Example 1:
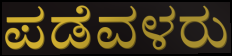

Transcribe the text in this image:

ಪಡೆವಳರು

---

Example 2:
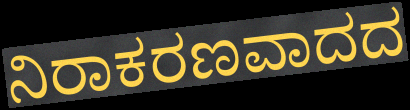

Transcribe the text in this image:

ನಿರಾಕರಣವಾದದ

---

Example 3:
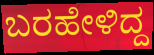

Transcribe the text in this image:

ಬರಹೇಳಿದ್ದ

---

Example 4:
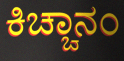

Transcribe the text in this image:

ಕಿಚ್ಚಾನಂ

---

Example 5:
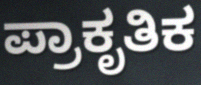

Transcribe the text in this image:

ಪ್ರಾಕೃತಿಕ